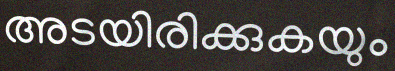
അടയിരിക്കുകയും